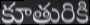
కూతురికి